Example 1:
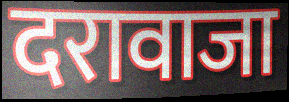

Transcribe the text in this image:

दरावाजा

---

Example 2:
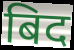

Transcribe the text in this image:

बिद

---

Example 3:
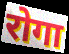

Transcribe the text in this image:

रोगा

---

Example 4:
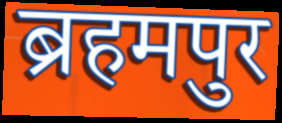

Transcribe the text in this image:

ब्रहमपुर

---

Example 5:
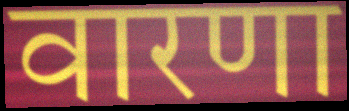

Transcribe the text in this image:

वारणा